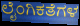
ಲೈಂಗಿಕತೆಗಳ